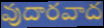
వుదారవాద